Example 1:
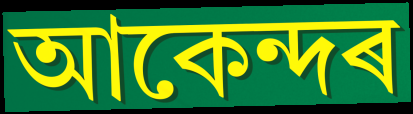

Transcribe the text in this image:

আকেন্দৰ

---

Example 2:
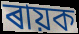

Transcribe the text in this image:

ৰায়ক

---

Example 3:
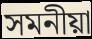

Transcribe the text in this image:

সমনীয়া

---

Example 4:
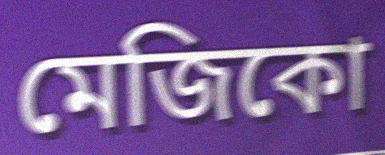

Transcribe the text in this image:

মেজিকো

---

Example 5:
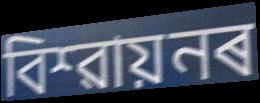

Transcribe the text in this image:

বিশ্ৱায়নৰ